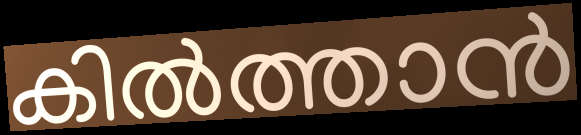
കിൽത്താൻ